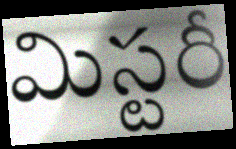
మిస్టరీ